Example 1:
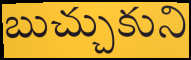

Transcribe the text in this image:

బుచ్చుకుని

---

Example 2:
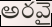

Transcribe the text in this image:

అరవై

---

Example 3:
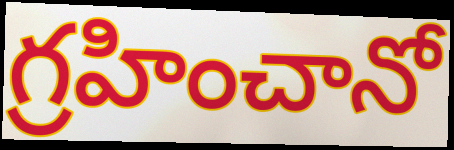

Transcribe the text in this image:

గ్రహించానో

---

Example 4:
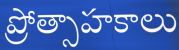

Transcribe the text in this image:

ప్రోత్సాహకాలు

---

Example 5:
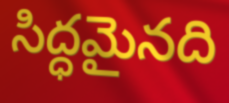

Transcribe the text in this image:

సిద్ధమైనది